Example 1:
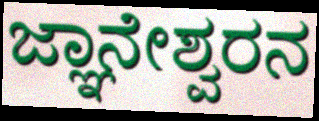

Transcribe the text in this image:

ಜ್ಞಾನೇಶ್ವರನ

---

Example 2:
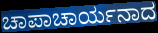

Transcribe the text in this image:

ಚಾಪಾಚಾರ್ಯನಾದ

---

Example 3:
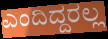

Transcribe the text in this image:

ಎಂದಿದ್ದರಲ್ಲ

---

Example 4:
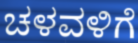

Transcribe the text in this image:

ಚಳವಳಿಗೆ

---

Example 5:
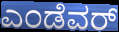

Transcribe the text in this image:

ಎಂಡೆವರ್